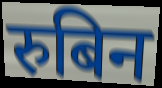
रुबिन